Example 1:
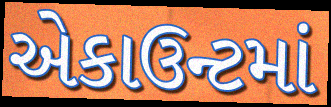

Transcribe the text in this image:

એકાઉન્ટમાં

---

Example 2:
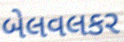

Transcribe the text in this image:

બેલવલકર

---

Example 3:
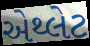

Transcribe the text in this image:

એથ્લેટ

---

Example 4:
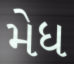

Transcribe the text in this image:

મેધ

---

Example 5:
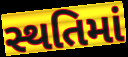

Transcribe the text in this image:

સ્થતિમાં